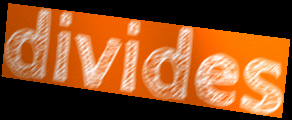
divides